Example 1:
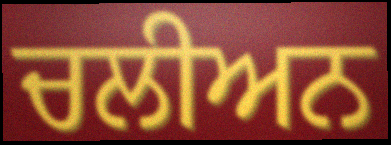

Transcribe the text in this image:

ਚਲੀਅਨ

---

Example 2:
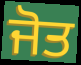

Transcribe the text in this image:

ਜੋਤ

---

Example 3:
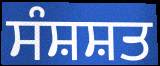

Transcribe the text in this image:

ਸੰਸ਼ਸ਼ਤ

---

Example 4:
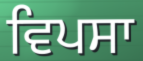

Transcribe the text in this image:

ਵਿਪਸਾ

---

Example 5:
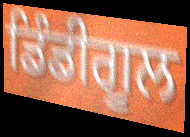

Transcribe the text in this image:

ਡਿੰਡੀਗੂਲ